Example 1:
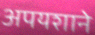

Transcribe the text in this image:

अपयशाने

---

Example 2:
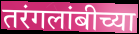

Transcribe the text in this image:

तरंगलांबीच्या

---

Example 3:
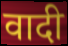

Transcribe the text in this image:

वादी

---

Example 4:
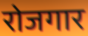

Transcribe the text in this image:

रोजगार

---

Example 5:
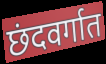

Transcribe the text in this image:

छंदवर्गात